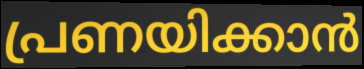
പ്രണയിക്കാൻ